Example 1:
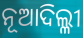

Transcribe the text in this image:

ନୂଆଦିଲ୍ଳୀ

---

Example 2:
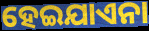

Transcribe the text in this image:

ହେଇଯାଏନା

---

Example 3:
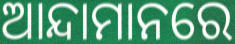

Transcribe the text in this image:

ଆନ୍ଦାମାନରେ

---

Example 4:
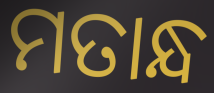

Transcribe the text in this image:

ମତାନ୍ଧ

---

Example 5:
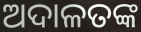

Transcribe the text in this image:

ଅଦାଳତଙ୍କ